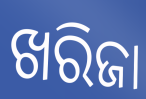
ଖରିଜା